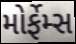
મોર્ફેમ્સ